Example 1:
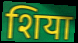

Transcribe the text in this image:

शिया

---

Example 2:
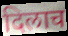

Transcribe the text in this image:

दिलाच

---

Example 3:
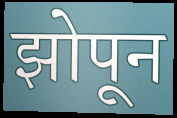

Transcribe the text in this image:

झोपून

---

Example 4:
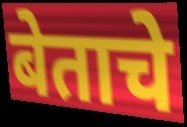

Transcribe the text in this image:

बेताचे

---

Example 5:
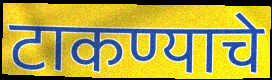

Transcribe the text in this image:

टाकण्याचे